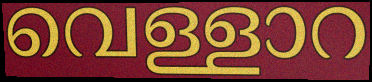
വെള്ളാറ